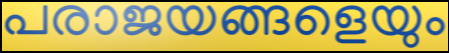
പരാജയങ്ങളെയും